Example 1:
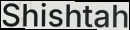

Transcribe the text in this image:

Shishtah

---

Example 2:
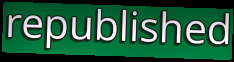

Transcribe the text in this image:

republished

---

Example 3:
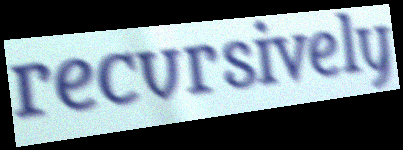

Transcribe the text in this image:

recursively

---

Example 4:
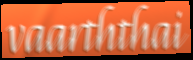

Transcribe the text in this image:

vaarththai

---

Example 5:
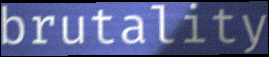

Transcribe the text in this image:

brutality